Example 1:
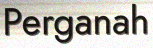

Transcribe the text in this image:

Perganah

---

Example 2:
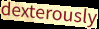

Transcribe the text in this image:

dexterously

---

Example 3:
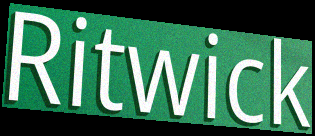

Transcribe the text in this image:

Ritwick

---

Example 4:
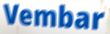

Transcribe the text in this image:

Vembar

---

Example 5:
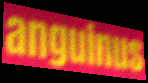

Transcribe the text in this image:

anguinus